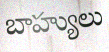
బాహ్యులు